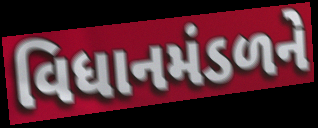
વિધાનમંડળને